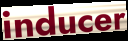
inducer